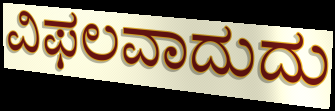
ವಿಫಲವಾದುದು